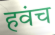
हवंच